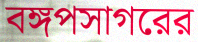
বঙ্গপসাগরের